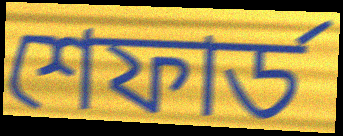
শেফার্ড